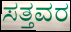
ಸತ್ತವರ